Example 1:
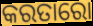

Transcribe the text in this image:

କରତାରୋ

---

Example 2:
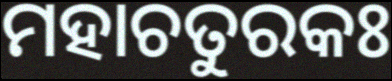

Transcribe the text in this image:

ମହାଚତୁରକଃ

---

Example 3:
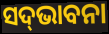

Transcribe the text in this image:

ସଦ୍‌ଭାବନା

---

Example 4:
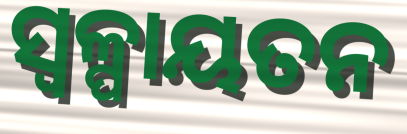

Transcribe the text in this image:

ସ୍ୱଳ୍ପାୟତନ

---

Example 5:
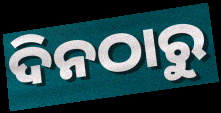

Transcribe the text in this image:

ଦିନଠାରୁ